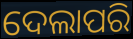
ଦେଲାପରି